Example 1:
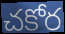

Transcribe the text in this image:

చకోర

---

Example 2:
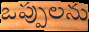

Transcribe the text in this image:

ఒప్పులను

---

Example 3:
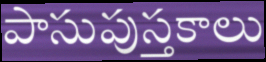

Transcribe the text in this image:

పాసుపుస్తకాలు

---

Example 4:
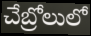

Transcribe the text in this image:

చేబ్రోలులో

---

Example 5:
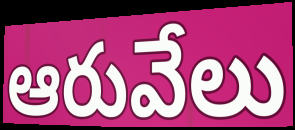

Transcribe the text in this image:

ఆరువేలు